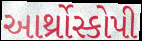
આર્થ્રોસ્કોપી